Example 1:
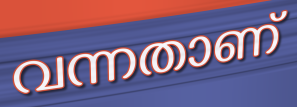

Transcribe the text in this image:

വന്നതാണ്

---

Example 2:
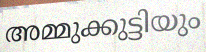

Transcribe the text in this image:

അമ്മുക്കുട്ടിയും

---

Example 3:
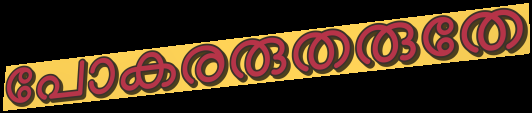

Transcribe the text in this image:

പോകരരുതരുതേ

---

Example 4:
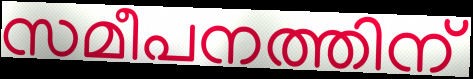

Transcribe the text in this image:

സമീപനത്തിന്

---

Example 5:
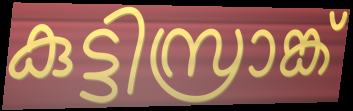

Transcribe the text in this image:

കുട്ടിസ്രാങ്ക്